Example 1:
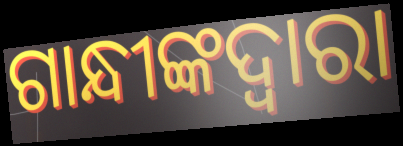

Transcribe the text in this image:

ଗାନ୍ଧୀଙ୍କଦ୍ଵାରା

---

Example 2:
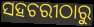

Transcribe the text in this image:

ସହଚରୀଠାରୁ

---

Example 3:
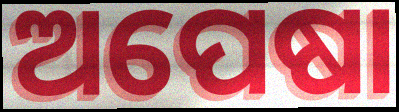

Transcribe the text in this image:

ଅପେଷା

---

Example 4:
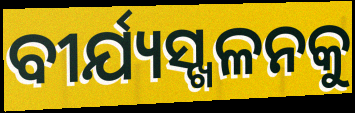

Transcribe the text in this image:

ବୀର୍ଯ୍ୟସ୍ଖଳନକୁ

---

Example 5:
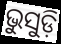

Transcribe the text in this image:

ଭୁସୁଡ଼ି